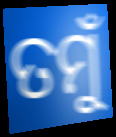
ତମୁଁ